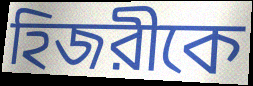
হিজরীকে